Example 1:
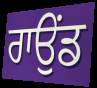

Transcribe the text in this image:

ਰਾਉਂਡ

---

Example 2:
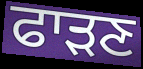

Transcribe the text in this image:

ਫਾੜਣ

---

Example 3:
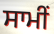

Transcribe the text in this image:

ਸਾਮੀਂ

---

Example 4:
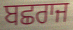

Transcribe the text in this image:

ਬਛਰਾਜ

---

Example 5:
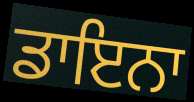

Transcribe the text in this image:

ਡਾਇਨਾ